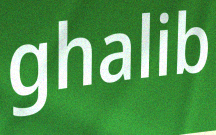
ghalib